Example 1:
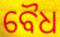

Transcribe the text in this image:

ବୈଧ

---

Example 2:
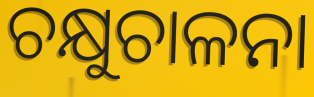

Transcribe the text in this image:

ଚକ୍ଷୁଚାଳନା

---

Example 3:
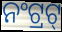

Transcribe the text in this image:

ନଂଟ୍ରଟ୍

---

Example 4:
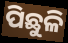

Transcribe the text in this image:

ପିଛୁଳି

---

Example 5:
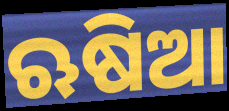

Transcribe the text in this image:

ଋଷିଆ